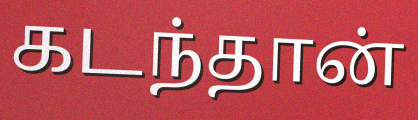
கடந்தான்